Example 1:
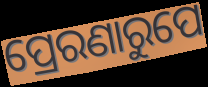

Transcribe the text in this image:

ପ୍ରେରଣାରୁପେ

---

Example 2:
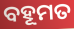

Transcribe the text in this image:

ବହୂମତ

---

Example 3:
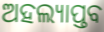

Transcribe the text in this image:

ଅହଲ୍ୟାପ୍ତବ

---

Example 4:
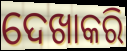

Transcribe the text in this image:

ଦେଖାକରି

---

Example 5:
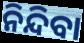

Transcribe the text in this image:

ନିନ୍ଦିବା